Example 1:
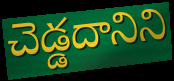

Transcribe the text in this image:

చెడ్డదానిని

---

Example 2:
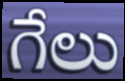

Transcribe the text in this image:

గేలు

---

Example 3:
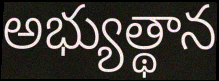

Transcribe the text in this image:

అభ్యుత్థాన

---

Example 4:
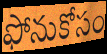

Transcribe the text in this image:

ఫోనుకోసం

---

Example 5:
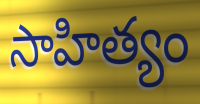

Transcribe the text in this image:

సాహిత్యం